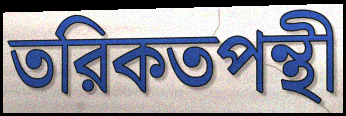
তরিকতপন্থী